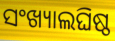
ସଂଖ୍ୟାଲଘିଷ୍ଠ